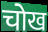
चोख